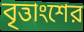
বৃত্তাংশের